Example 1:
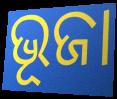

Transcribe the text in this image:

ଭୂଜା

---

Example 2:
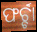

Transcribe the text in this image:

ଫର୍ଚ୍ଚା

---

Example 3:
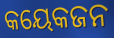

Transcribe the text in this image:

କୟେକଜନ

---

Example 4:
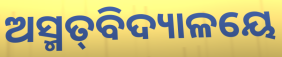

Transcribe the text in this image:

ଅସ୍ମତ୍‌ବିଦ୍ୟାଳୟେ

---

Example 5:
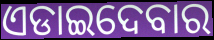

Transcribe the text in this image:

ଏଡାଇଦେବାର